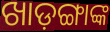
ଖାଡ଼ଙ୍ଗାଙ୍କ